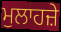
ਮੁਲਾਹਜ਼ੇ